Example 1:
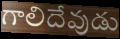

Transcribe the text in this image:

గాలిదేవుడు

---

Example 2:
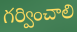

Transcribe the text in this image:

గర్వించాలి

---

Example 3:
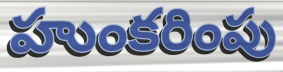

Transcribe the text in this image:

హుంకరింపు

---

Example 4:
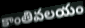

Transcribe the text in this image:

కాంతివలయం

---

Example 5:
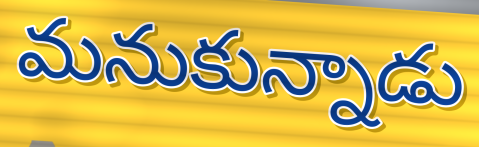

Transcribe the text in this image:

మనుకున్నాడు